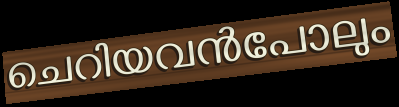
ചെറിയവൻപോലും